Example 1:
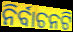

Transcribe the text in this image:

ନିର୍ବାଚନଟି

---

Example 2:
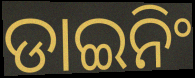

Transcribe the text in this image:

ଡାଇନିଂ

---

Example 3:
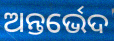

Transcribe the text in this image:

ଅନ୍ତର୍ଭେଦ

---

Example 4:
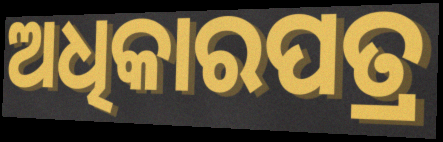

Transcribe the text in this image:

ଅଧିକାରପତ୍ର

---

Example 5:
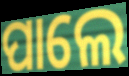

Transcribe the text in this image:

ପାଲେ